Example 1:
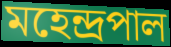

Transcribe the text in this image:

মহেন্দ্রপাল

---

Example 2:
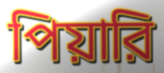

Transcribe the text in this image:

পিয়ারি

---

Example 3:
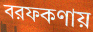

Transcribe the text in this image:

বরফকণায়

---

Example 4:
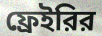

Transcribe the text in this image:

ফ্রেইরির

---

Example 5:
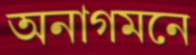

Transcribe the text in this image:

অনাগমনে